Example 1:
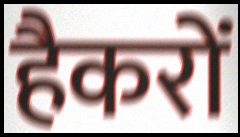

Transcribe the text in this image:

हैकरों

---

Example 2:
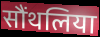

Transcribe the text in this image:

सौंथलिया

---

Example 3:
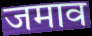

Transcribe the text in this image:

जमाव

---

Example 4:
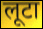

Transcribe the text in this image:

लूटा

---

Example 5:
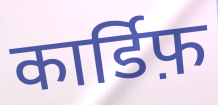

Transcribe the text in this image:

कार्डिफ़